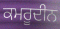
ਕਮਰੂਦੀਨ